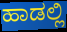
ಹಾಡಲ್ಲಿ